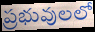
ప్రభువులలో